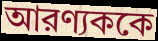
আরণ্যককে